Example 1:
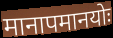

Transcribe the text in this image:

मानापमानयोः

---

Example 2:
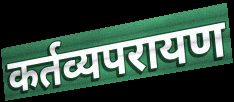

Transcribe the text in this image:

कर्तव्यपरायण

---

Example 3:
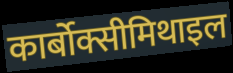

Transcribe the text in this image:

कार्बोक्सीमिथाइल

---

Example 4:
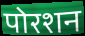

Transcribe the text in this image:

पोरशन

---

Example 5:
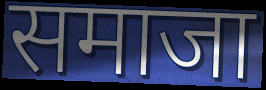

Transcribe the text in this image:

समाजा